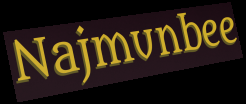
Najmunbee